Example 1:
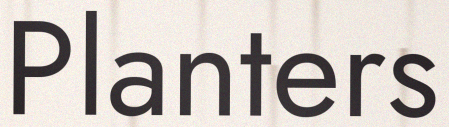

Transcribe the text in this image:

Planters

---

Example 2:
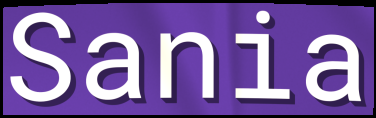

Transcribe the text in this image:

Sania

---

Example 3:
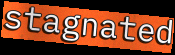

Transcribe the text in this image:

stagnated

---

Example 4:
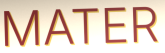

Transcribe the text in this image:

MATER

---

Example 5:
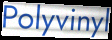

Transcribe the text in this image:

Polyvinyl